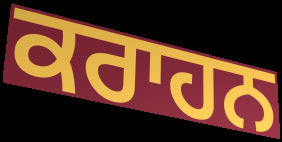
ਕਰਾਹਨ